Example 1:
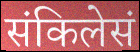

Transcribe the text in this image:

संकिलेसं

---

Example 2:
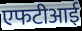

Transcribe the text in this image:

एफटीआई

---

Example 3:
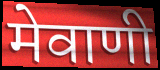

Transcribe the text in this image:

मेवाणी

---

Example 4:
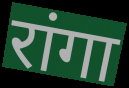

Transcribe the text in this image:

रांगा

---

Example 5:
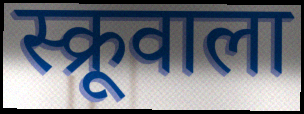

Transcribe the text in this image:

स्क्रूवाला